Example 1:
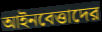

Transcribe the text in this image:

আইনবেত্তাদের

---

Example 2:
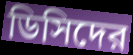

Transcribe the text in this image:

ডিসিদের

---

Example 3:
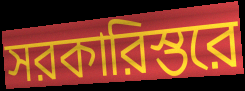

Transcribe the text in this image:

সরকারিস্তরে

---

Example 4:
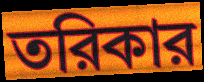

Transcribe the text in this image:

তরিকার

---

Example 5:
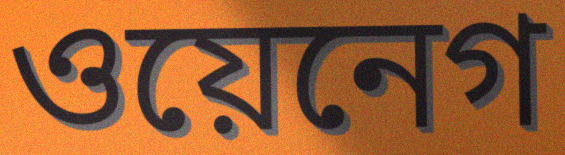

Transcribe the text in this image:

ওয়েনেগ